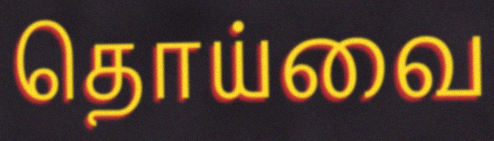
தொய்வை